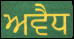
ਅਵੈਧ